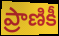
ప్రాణికీ